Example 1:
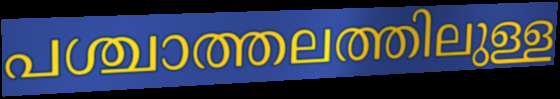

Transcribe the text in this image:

പശ്ചാത്തലത്തിലുള്ള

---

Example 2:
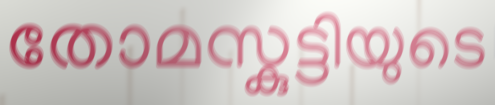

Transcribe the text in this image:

തോമസ്കുട്ടിയുടെ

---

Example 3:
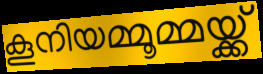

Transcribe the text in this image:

കൂനിയമ്മൂമ്മയ്ക്ക്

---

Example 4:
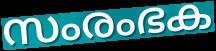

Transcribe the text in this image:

സംരംഭക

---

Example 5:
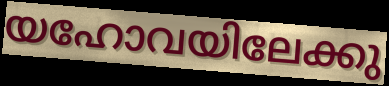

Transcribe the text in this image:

യഹോവയിലേക്കു